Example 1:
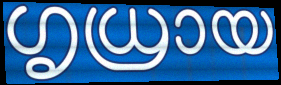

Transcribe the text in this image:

ഗൃധ്രായ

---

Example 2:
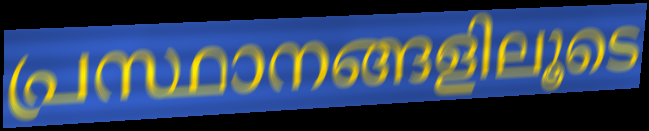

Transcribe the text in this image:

പ്രസ്ഥാനങ്ങളിലൂടെ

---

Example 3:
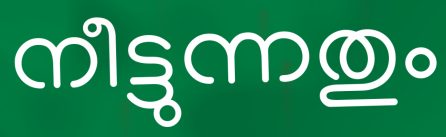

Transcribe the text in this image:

നീട്ടുന്നതും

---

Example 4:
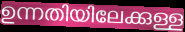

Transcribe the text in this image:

ഉന്നതിയിലേക്കുള്ള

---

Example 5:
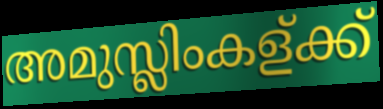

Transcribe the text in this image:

അമുസ്ലിംകള്ക്ക്